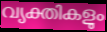
വ്യക്തികളും